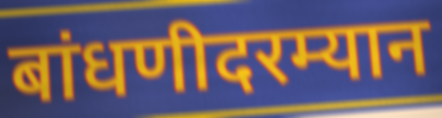
बांधणीदरम्यान